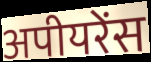
अपीयरेंस